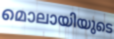
മൊലായിയുടെ